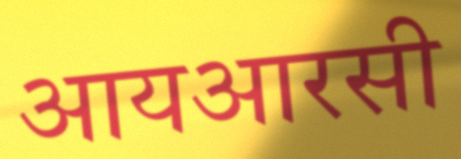
आयआरसी